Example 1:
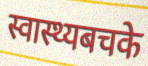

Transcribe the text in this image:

स्वास्थ्यबचके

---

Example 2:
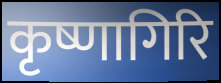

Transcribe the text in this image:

कृष्णागिरि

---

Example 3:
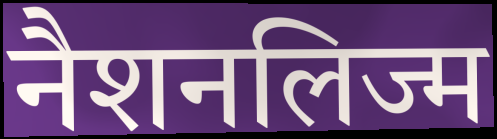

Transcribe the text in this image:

नैशनलिज्म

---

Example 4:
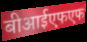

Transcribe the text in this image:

बीआईएफएफ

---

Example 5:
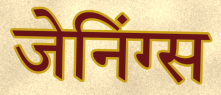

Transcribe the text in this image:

जेनिंग्स